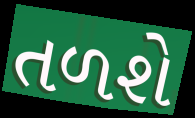
તળશે